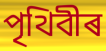
পৃথিবীৰ